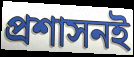
প্রশাসনই